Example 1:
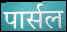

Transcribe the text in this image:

पार्सल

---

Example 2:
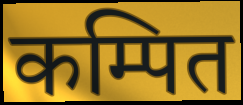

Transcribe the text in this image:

कम्पित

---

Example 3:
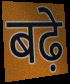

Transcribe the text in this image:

बढ़े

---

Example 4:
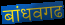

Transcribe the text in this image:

बांधवगढ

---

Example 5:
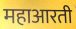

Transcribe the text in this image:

महाआरती